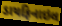
ડાયફિનાઇલ